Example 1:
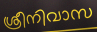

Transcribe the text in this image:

ശ്രീനിവാസ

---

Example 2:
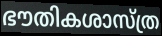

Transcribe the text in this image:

ഭൗതികശാസ്ത്ര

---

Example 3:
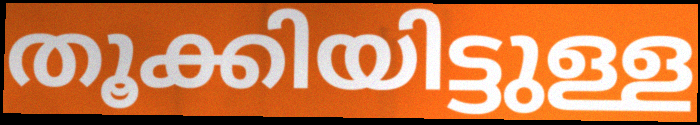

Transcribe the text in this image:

തൂക്കിയിട്ടുള്ള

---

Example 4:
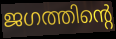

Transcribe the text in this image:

ജഗത്തിന്റെ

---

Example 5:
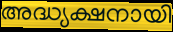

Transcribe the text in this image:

അദ്ധ്യക്ഷനായി